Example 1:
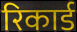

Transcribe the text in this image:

रिकार्ड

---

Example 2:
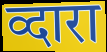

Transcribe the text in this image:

व्दारा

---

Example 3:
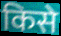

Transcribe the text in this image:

किसे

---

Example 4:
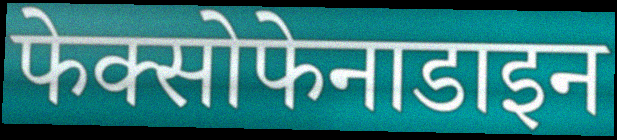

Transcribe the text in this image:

फेक्सोफेनाडाइन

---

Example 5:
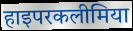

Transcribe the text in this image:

हाइपरकलीमिया